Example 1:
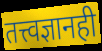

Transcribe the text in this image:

तत्त्वज्ञानही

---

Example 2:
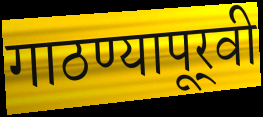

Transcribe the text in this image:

गाठण्यापूर्वी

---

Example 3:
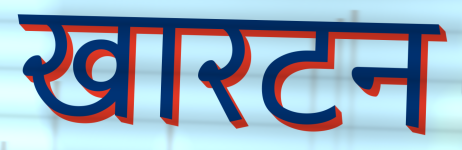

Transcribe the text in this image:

खारटन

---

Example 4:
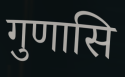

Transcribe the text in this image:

गुणासि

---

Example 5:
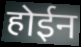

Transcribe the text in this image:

होईन